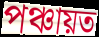
পঞ্চায়ত